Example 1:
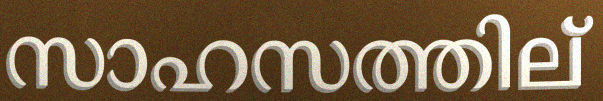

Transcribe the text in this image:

സാഹസത്തില്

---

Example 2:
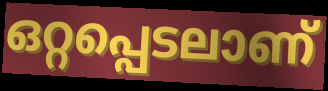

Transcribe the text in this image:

ഒറ്റപ്പെടലാണ്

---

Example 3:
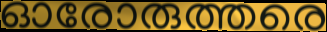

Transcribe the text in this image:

ഓരോരുത്തരെ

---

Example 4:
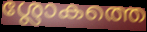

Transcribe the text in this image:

ശ്ലോകത്തെ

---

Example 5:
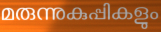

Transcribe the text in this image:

മരുന്നുകുപ്പികളും